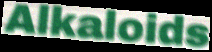
Alkaloids